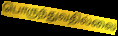
பொருந்துவதில்லை